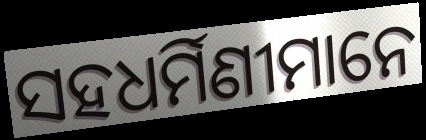
ସହଧର୍ମିଣୀମାନେ